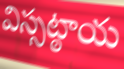
విస్సట్ఠాయ